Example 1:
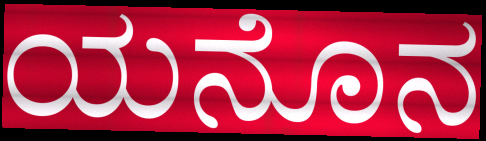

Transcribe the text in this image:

ಯನೊನ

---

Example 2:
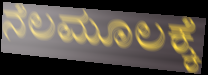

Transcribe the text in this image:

ನೆಲಮೂಲಕ್ಕೆ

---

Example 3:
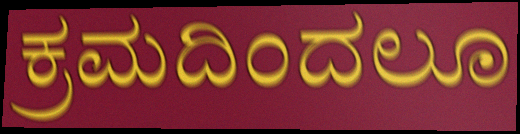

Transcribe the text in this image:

ಕ್ರಮದಿಂದಲೂ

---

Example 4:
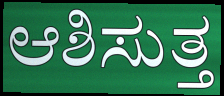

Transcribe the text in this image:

ಆಶಿಸುತ್ತ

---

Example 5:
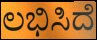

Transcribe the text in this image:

ಲಭಿಸಿದೆ